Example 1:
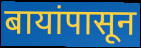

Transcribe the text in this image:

बायांपासून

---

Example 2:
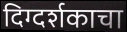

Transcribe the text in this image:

दिग्दर्शकाचा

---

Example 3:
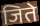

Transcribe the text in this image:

जिते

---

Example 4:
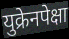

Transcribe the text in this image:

युक्रेनपेक्षा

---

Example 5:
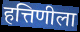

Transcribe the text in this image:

हत्तिणीला